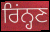
ਰਿਂਨ੍ਹਣ